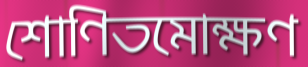
শোণিতমোক্ষণ